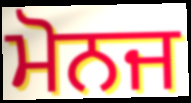
ਮੋਨਜ